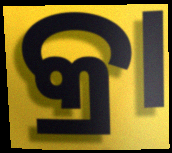
କ୍ରା